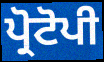
ਪ੍ਰੋਟੋਪੀ